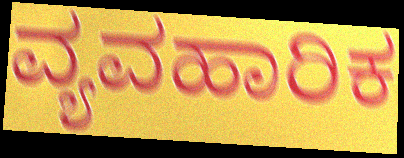
ವ್ಯವಹಾರಿಕ